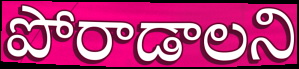
పోరాడాలని